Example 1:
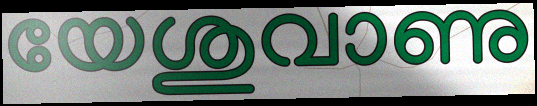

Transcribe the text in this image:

യേശുവാണു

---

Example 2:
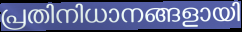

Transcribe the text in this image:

പ്രതിനിധാനങ്ങളായി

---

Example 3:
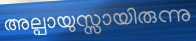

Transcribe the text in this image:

അല്പായുസ്സായിരുന്നു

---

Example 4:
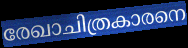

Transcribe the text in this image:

രേഖാചിത്രകാരനെ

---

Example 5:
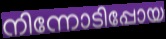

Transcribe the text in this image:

നിന്നോടിപ്പോയ